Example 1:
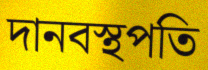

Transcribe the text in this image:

দানবস্থপতি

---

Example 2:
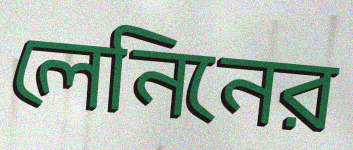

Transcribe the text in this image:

লেনিনের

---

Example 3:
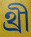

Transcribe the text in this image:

থ্রী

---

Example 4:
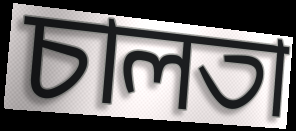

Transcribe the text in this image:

চালতা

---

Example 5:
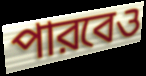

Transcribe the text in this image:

পারবেও